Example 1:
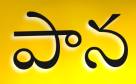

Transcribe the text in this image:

పాన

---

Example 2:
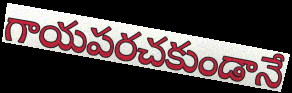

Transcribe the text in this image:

గాయపరచకుండానే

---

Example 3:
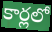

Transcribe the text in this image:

కార్లలో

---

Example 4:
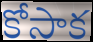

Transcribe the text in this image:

కోసాక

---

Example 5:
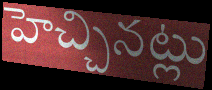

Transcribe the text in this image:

హెచ్చినట్లు